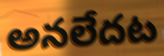
అనలేదట